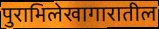
पुराभिलेखागारातील